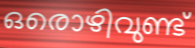
ഒരൊഴിവുണ്ട്